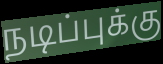
நடிப்புக்கு